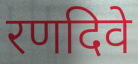
रणदिवे